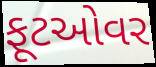
ફૂટઓવર